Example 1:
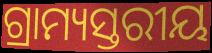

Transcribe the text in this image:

ଗ୍ରାମ୍ୟସ୍ତରୀୟ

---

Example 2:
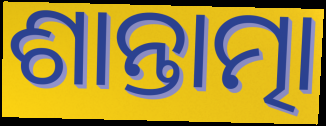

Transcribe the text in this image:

ଶାନ୍ତାତ୍ମା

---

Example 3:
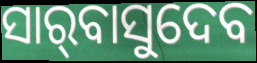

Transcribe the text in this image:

ସାର୍‌ବାସୁଦେବ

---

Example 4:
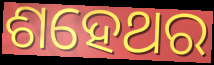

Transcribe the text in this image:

ଶହେଥର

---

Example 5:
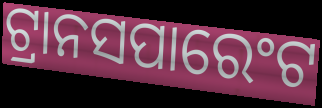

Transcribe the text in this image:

ଟ୍ରାନସପାରେଂଟ